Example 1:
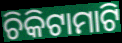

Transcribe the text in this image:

ଚିକିଟାମାଟି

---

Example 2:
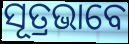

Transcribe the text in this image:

ସୂତ୍ରଭାବେ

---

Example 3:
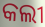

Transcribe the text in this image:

କଲୀ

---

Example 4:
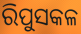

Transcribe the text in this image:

ରିପୁସକଳ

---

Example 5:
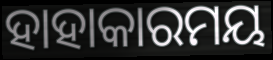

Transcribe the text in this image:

ହାହାକାରମୟ